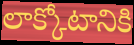
లాక్కోటానికి